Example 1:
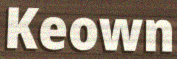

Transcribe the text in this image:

Keown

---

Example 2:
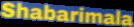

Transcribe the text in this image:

Shabarimala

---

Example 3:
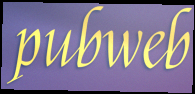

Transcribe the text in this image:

pubweb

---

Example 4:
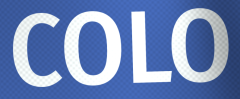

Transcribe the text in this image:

COLO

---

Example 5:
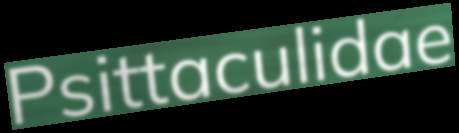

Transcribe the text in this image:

Psittaculidae